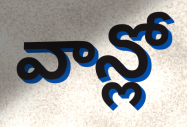
వాన్లో